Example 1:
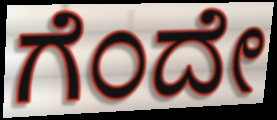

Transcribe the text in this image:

ಗೆಂದೇ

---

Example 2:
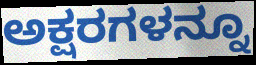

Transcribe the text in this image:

ಅಕ್ಷರಗಳನ್ನೂ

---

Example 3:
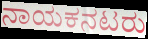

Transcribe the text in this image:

ನಾಯಕನಟರು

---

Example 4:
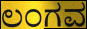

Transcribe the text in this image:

ಲಂಗವ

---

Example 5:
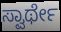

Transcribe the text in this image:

ಸ್ವಾರ್ಥೇ